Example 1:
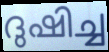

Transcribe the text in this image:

ദുഷിച്ച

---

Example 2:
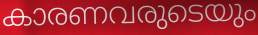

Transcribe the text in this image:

കാരണവരുടെയും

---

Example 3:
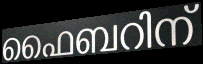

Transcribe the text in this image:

ഫൈബറിന്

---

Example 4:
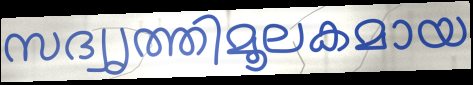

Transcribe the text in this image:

സദ്വൃത്തിമൂലകമായ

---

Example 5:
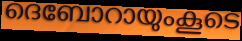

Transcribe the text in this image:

ദെബോറായുംകൂടെ